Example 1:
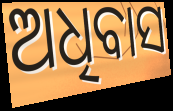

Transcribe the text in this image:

ଅଧିବାସ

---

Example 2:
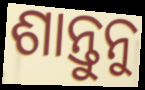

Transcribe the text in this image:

ଶାନ୍ତୁନୁ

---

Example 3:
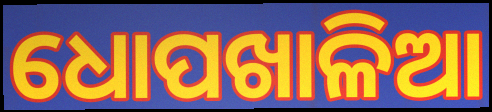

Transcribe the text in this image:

ଧୋପଖାଳିଆ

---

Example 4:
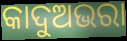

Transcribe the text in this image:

କାଦୁଅଭରା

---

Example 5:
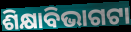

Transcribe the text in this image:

ଶିକ୍ଷାବିଭାଗଟା